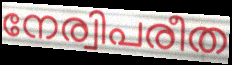
നേര്വിപരീത